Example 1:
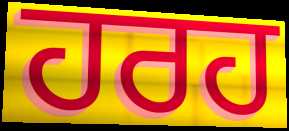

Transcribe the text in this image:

ਹਰਹ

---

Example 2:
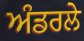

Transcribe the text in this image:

ਅੰਡਰਲੇ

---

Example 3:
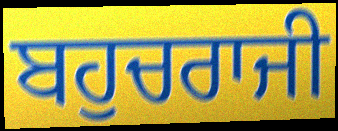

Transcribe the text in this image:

ਬਹੁਚਰਾਜੀ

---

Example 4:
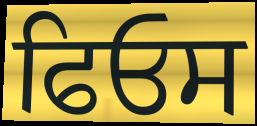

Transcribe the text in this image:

ਫਿਓਸ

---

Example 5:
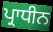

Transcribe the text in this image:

ਪ੍ਰਾਧੀਨ